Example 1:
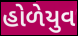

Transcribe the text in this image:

હોળેયુવ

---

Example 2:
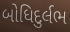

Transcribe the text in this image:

બોધિદુર્લભ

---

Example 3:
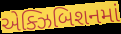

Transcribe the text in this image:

એક્ઝિબિશનમાં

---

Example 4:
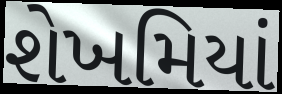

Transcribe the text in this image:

શેખમિયાં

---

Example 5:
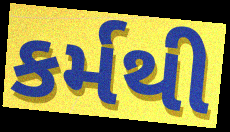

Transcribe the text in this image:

કર્મથી